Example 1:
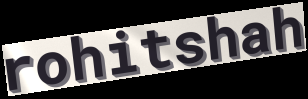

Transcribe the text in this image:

rohitshah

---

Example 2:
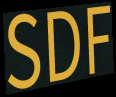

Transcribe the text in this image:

SDF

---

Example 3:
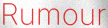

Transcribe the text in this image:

Rumour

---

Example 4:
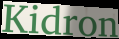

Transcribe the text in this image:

Kidron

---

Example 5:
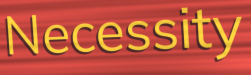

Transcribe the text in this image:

Necessity